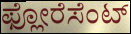
ಫ್ಲೋರೆಸೆಂಟ್